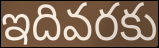
ఇదివరకు